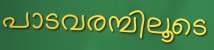
പാടവരമ്പിലൂടെ